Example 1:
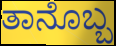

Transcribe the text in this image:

ತಾನೊಬ್ಬ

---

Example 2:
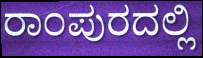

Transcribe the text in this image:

ರಾಂಪುರದಲ್ಲಿ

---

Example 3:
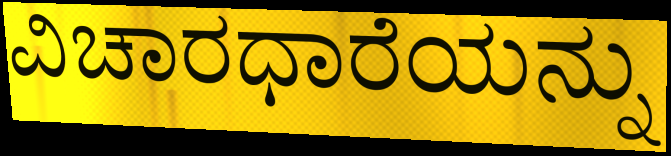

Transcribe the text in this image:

ವಿಚಾರಧಾರೆಯನ್ನು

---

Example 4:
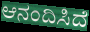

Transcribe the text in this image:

ಆನಂದಿಸಿದೆ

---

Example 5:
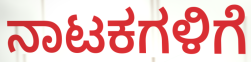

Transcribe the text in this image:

ನಾಟಕಗಳಿಗೆ